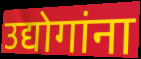
उद्योगांना